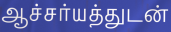
ஆச்சர்யத்துடன்